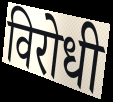
विरोधी